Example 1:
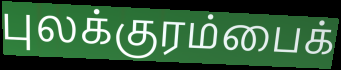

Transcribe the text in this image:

புலக்குரம்பைக்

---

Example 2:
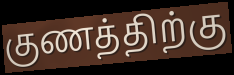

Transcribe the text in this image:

குணத்திற்கு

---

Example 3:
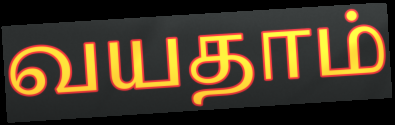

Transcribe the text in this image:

வயதாம்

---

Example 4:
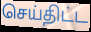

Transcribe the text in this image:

செய்திட்ட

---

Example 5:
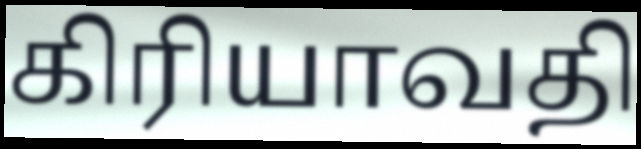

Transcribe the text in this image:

கிரியாவதி